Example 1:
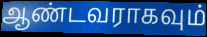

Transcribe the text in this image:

ஆண்டவராகவும்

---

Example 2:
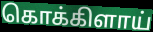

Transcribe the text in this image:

கொக்கிளாய்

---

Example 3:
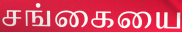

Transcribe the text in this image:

சங்கையை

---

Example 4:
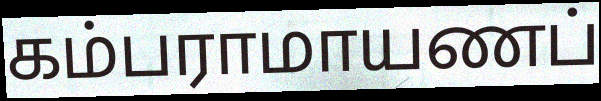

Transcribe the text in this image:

கம்பராமாயணப்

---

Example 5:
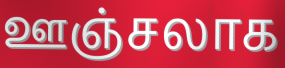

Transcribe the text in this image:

ஊஞ்சலாக